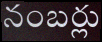
నంబర్లు